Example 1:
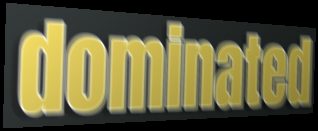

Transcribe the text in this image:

dominated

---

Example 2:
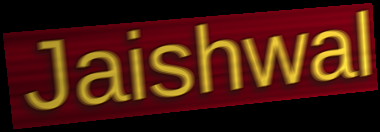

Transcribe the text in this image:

Jaishwal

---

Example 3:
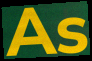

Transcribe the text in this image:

As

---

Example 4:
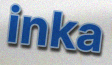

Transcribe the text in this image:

inka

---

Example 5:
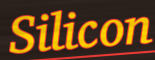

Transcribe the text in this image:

Silicon